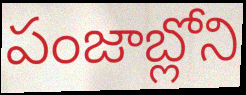
పంజాబ్లోని